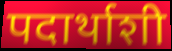
पदार्थाशी